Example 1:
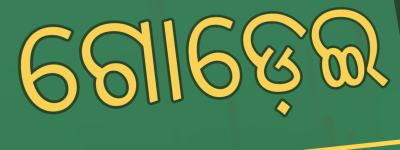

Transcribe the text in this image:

ଗୋଡ଼େଇ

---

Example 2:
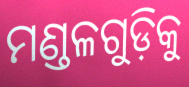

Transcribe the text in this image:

ମଣ୍ଡଳଗୁଡ଼ିକୁ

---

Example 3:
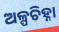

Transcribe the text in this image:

ଅଳ୍ପଚିହ୍ନା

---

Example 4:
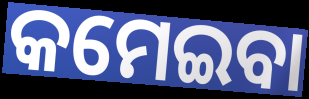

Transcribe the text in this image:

କମେଇବା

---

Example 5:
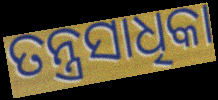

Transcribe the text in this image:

ତନ୍ତ୍ରସାଧିକା